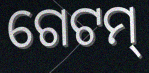
ଗେଟମ୍